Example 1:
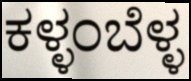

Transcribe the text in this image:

ಕಳ್ಳಂಬೆಳ್ಳ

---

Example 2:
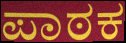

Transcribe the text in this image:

ಪಾಠಕ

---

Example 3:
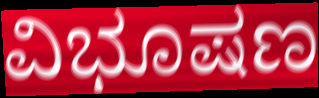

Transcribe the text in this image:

ವಿಭೂಷಣ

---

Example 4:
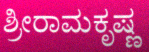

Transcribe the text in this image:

ಶ್ರೀರಾಮಕೃಷ್ಣ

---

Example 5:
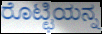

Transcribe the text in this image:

ರೊಟ್ಟಿಯನ್ನ